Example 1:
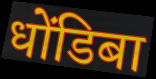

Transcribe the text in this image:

धोंडिबा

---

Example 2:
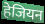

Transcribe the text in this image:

हेजियन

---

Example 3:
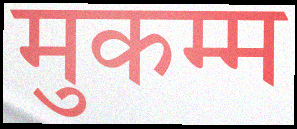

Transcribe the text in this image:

मुकम्म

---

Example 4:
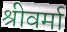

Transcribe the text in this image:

श्रीवर्मा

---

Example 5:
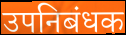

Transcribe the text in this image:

उपनिबंधक